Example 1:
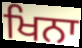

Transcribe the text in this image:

ਖਿਨਾ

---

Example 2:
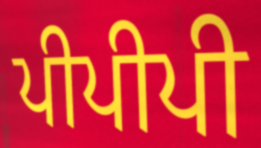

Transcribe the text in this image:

ਪੀਪੀਪੀ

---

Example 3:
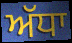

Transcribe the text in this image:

ਅੱਧਾ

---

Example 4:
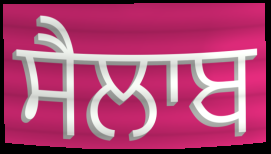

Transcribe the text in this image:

ਸੈਲਾਬ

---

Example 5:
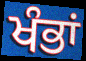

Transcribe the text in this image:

ਖੰਭਾਂ